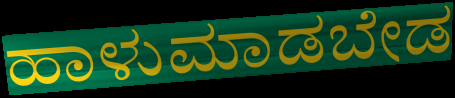
ಹಾಳುಮಾಡಬೇಡ